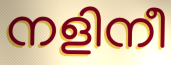
നളിനീ